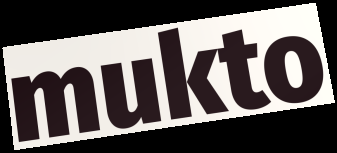
mukto